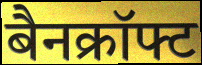
बैनक्रॉफ्ट